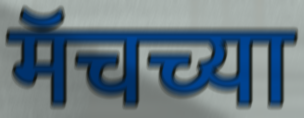
मॅचच्या